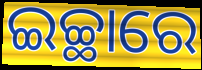
ଇଚ୍ଛାରେ